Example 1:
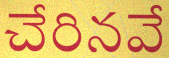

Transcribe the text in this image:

చేరినవే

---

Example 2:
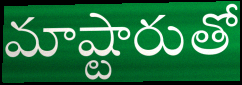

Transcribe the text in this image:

మాష్టారుతో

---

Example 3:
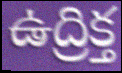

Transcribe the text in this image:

ఉద్రిక్త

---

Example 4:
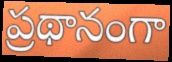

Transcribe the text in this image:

ప్రథానంగా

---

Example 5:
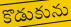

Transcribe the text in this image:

కొడుకును